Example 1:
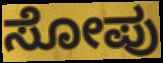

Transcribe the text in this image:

ಸೋಪು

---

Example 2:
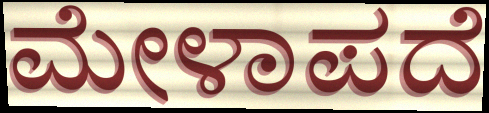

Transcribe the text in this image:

ಮೇಳಾಪದೆ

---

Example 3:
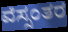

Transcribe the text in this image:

ವೆಸ್ಸಂತರ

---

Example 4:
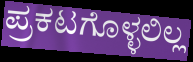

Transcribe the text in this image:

ಪ್ರಕಟಗೊಳ್ಳಲಿಲ್ಲ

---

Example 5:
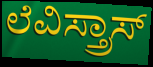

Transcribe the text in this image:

ಲೆವಿಸ್ತ್ರಾಸ್